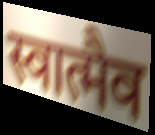
स्वात्मैव